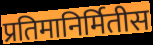
प्रतिमानिर्मितीस